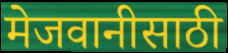
मेजवानीसाठी